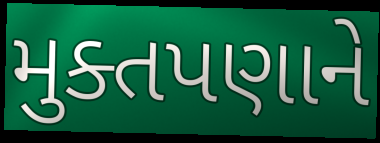
મુક્તપણાને